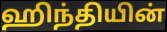
ஹிந்தியின்